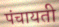
पंचायती